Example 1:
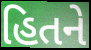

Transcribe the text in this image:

હિતને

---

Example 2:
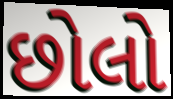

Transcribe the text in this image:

છોલો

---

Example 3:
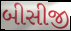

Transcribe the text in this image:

બીસીજી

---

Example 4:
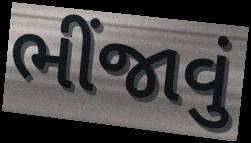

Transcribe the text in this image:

ભીંજાવું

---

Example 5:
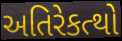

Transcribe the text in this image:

અતિરેકત્થો